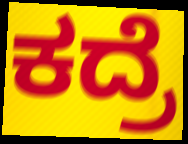
ಕದ್ರೆ